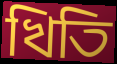
খিতি